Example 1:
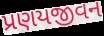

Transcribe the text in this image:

પ્રણયજીવન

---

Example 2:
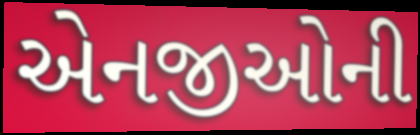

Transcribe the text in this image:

એનજીઓની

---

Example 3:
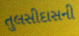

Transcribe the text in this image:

તુલસીદાસની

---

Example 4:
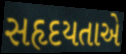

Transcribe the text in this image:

સહૃદયતાએ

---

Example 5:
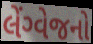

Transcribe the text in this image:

લેંગ્વેજનો